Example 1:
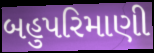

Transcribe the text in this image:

બહુપરિમાણી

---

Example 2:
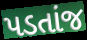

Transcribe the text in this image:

પડતાંજ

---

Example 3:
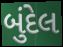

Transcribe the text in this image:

બુંદેલ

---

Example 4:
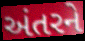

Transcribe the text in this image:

અંતરને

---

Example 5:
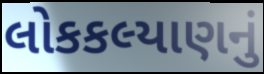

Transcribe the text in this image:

લોકકલ્યાણનું